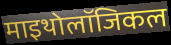
माइथोलॉजिकल